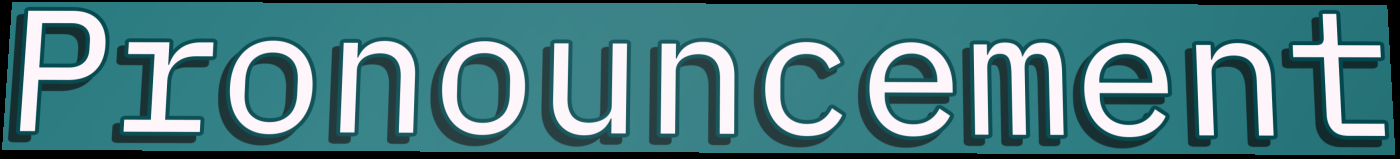
Pronouncement